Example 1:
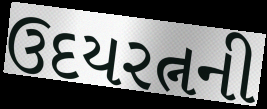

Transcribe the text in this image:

ઉદયરત્નની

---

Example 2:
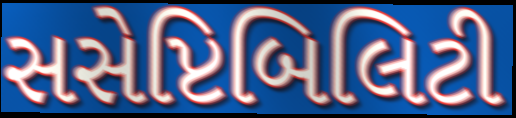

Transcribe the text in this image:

સસેપ્ટિબિલિટી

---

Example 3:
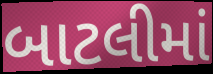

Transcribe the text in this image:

બાટલીમાં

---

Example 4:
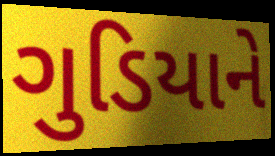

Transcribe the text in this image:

ગુડિયાને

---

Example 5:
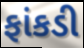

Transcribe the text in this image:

ફાંકડી